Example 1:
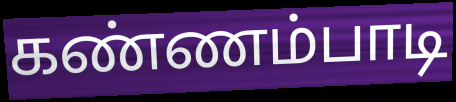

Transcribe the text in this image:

கண்ணம்பாடி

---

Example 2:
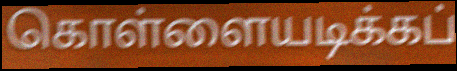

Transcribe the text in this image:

கொள்ளையடிக்கப்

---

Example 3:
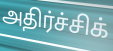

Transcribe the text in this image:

அதிர்ச்சிக்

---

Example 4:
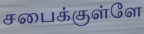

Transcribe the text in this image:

சபைக்குள்ளே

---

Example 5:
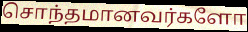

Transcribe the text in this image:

சொந்தமானவர்களோ